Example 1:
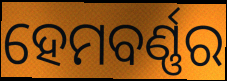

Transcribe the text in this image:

ହେମବର୍ଣ୍ଣର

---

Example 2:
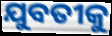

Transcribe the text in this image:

ଯୁବତୀକୁ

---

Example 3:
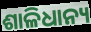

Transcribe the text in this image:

ଶାଳିଧାନ୍ୟ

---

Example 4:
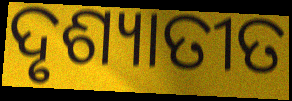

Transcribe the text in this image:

ଦୃଶ୍ୟାତୀତ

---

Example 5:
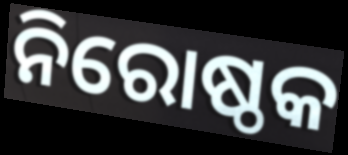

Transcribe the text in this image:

ନିରୋଷ୍ଠକ